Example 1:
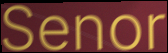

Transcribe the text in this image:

Senor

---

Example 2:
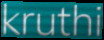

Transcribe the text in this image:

kruthi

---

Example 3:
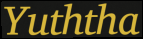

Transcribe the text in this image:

Yuththa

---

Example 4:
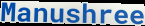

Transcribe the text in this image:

Manushree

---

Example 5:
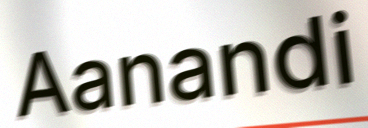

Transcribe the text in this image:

Aanandi